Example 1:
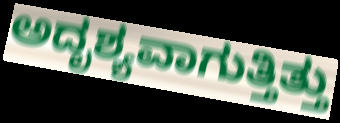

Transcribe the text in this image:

ಅದೃಶ್ಯವಾಗುತ್ತಿತ್ತು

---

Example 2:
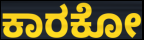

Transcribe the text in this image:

ಕಾರಕೋ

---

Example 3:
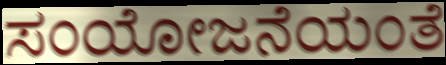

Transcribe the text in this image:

ಸಂಯೋಜನೆಯಂತೆ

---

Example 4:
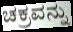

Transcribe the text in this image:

ಚಕ್ರವನ್ನು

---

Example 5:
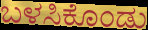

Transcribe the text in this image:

ಬಳಸಿಕೊಂಡು